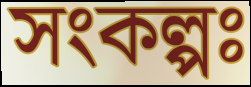
সংকল্পঃ